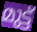
മുട്ട്